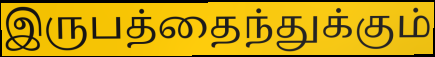
இருபத்தைந்துக்கும்